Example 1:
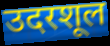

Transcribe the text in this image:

उदरशूल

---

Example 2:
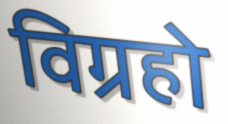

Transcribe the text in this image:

विग्रहो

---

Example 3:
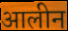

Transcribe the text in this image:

आलीन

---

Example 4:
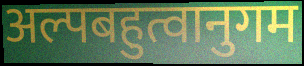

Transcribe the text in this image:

अल्पबहुत्वानुगम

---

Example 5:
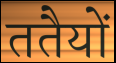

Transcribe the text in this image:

ततैयों